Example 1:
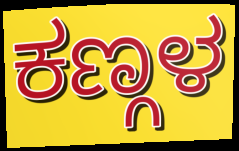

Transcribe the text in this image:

ಕಣ್ಗಳ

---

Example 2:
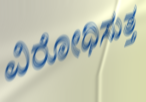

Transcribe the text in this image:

ವಿರೋಧಿಸುತ್ತ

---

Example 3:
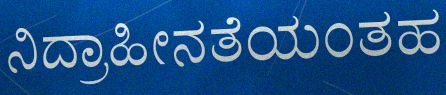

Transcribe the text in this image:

ನಿದ್ರಾಹೀನತೆಯಂತಹ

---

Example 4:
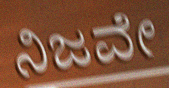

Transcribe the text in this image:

ನಿಜವೇ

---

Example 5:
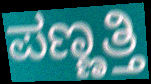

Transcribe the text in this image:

ಪಣ್ಣತ್ತಿ